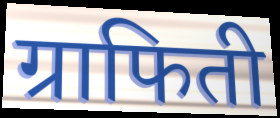
ग्राफिती